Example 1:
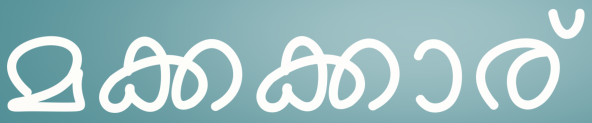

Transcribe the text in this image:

മക്കക്കാര്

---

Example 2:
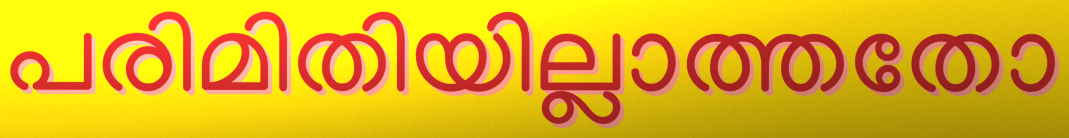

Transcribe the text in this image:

പരിമിതിയില്ലാത്തതോ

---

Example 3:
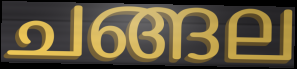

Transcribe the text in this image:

ചങ്ങല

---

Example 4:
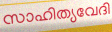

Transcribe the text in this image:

സാഹിത്യവേദി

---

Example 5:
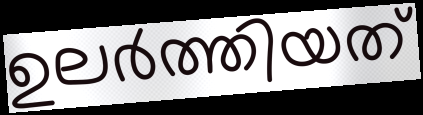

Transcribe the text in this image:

ഉലർത്തിയത്